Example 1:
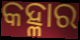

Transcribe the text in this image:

କହ୍ଳାର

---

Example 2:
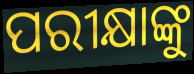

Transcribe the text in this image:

ପରୀକ୍ଷାଙ୍କୁ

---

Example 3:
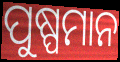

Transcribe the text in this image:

ପୁଷ୍ପମାନ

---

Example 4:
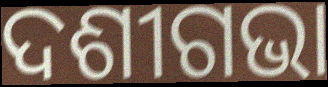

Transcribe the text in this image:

ଦଶୀଗଭା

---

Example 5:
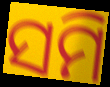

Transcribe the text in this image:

ସମି